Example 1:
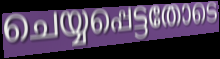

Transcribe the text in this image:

ചെയ്യപ്പെട്ടതോടെ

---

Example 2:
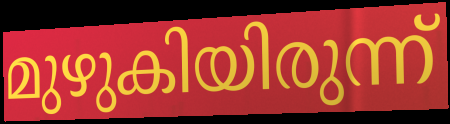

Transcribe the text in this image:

മുഴുകിയിരുന്ന്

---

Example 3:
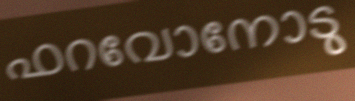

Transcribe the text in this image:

ഫറവോനോടു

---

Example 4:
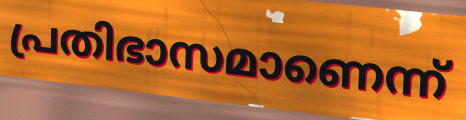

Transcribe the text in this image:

പ്രതിഭാസമാണെന്ന്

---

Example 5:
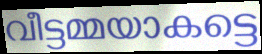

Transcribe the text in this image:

വീട്ടമ്മയാകട്ടെ